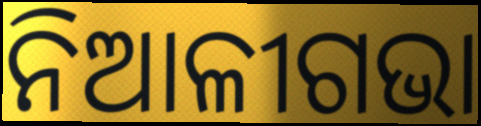
ନିଆଳୀଗଭା